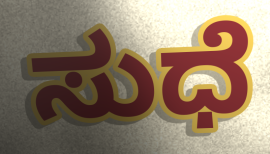
ಸುಧೆ